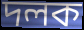
দলক